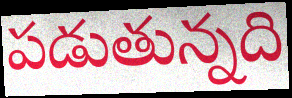
పడుతున్నది